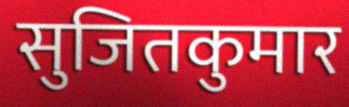
सुजितकुमार